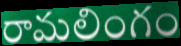
రామలింగం